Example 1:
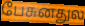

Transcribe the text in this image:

பேசுனதுல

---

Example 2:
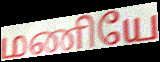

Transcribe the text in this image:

மணியே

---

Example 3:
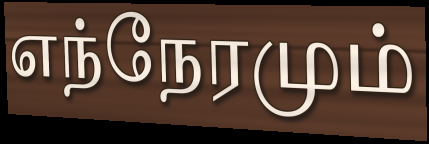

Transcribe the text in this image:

எந்நேரமும்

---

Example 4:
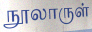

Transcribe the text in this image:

நூலாருள்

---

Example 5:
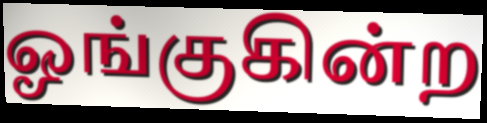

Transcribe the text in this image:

ஓங்குகின்ற